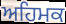
ਅਹਿਮਕ